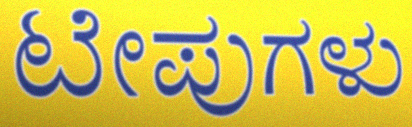
ಟೇಪುಗಳು